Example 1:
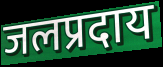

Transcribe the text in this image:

जलप्रदाय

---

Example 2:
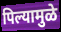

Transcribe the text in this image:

पिल्यामुळे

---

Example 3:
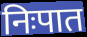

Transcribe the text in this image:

निःपात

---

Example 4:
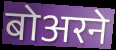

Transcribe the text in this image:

बोअरने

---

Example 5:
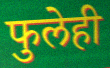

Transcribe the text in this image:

फुलेही